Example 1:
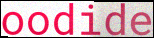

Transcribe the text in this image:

oodide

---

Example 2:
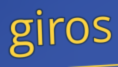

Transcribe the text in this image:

giros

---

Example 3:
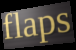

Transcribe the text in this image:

flaps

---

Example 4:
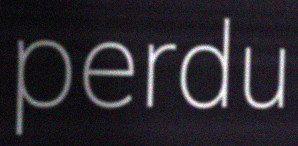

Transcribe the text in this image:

perdu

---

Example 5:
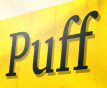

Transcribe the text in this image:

Puff